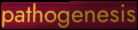
pathogenesis